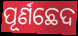
ପୂର୍ଣଛେଦ